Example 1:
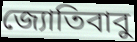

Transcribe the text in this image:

জ্যোতিবাবু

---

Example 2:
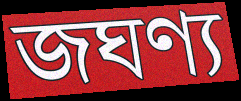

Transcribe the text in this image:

জঘণ্য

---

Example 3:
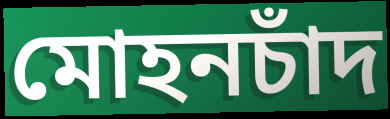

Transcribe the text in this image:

মোহনচাঁদ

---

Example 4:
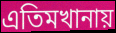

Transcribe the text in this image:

এতিমখানায়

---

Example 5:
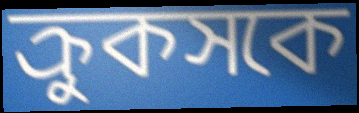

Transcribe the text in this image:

ক্রুকসকে